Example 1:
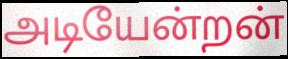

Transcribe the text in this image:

அடியேன்றன்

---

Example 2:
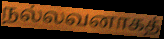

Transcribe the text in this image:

நல்லவனாகத்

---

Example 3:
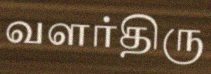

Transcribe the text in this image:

வளர்திரு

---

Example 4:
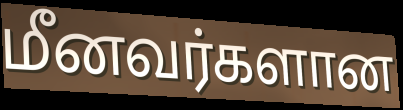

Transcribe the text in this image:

மீனவர்களான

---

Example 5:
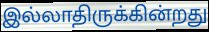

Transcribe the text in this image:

இல்லாதிருக்கின்றது